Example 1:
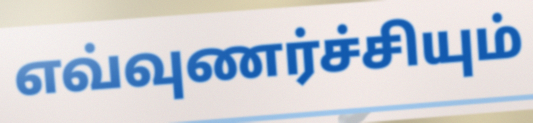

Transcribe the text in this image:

எவ்வுணர்ச்சியும்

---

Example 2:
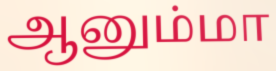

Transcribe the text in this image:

ஆனும்மா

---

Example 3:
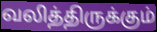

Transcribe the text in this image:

வலித்திருக்கும்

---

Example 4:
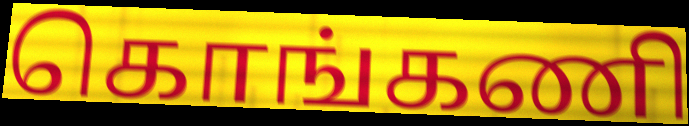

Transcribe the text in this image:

கொங்கணி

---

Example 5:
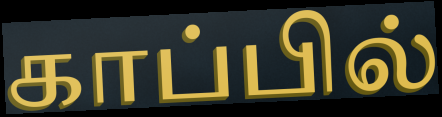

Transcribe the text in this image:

காப்பில்